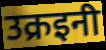
उक्रइनी